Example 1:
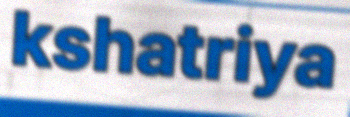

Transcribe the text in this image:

kshatriya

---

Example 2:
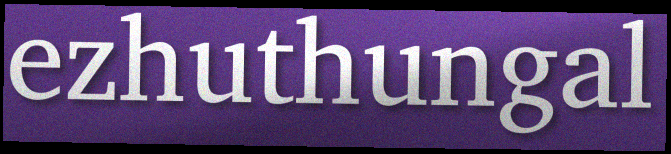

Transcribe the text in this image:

ezhuthungal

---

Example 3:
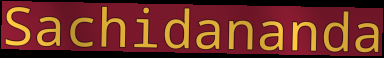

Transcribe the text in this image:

Sachidananda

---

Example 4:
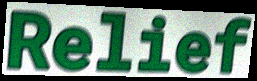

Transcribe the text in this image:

Relief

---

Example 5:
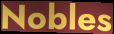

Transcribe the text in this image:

Nobles